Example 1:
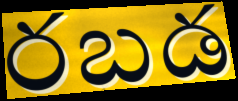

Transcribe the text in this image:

రబడ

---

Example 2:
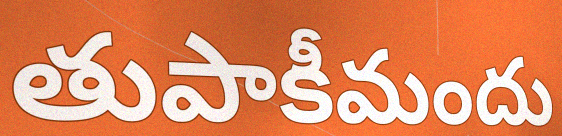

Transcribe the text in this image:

తుపాకీమందు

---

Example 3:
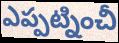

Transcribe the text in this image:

ఎప్పట్నించీ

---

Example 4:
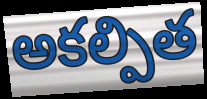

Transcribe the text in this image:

అకల్పిత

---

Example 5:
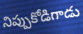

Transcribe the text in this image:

నిప్పుకోడిగాడు